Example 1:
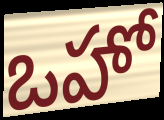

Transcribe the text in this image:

ఒహో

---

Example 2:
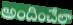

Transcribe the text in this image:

అందించేలా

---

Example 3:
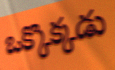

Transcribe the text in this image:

ఒక్కొక్కడు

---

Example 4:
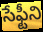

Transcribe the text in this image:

సేఫ్టీని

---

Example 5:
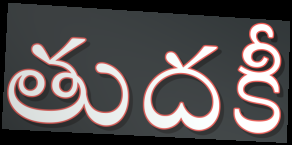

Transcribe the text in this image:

తుదకీ